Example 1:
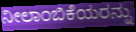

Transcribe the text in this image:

ನೀಲಾಂಬಿಕೆಯರನ್ನು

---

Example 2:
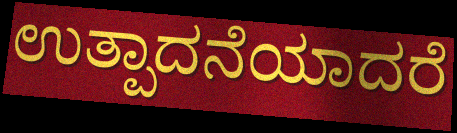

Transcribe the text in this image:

ಉತ್ಪಾದನೆಯಾದರೆ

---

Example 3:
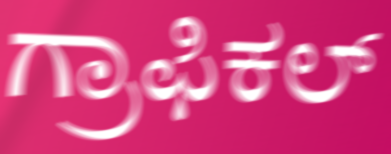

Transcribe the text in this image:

ಗ್ರಾಫಿಕಲ್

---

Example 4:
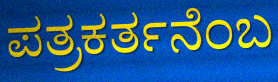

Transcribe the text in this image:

ಪತ್ರಕರ್ತನೆಂಬ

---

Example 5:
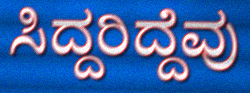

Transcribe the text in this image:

ಸಿದ್ದರಿದ್ದೆವು